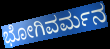
ಭೋಗಿವರ್ಮನ